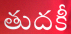
తుదకీ